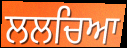
ਲਲਚਿਆ